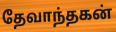
தேவாந்தகன்